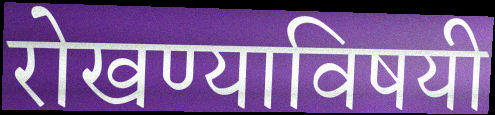
रोखण्याविषयी